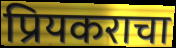
प्रियकराचा